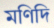
মণিদি